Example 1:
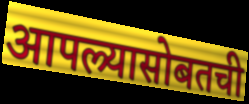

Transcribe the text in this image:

आपल्यासोबतची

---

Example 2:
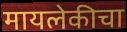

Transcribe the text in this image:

मायलेकीचा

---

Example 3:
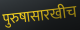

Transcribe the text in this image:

पुरुषासारखीच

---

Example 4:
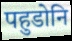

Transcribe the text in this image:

पहुडोनि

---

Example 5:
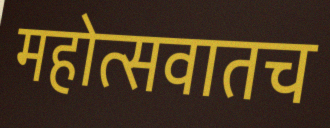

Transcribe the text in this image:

महोत्सवातच